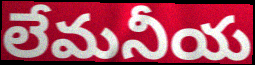
లేమనీయ